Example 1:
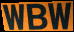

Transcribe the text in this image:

WBW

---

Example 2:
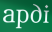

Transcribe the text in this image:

apdi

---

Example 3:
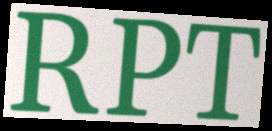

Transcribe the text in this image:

RPT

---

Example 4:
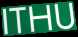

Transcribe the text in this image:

ITHU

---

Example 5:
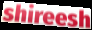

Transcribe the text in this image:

shireesh